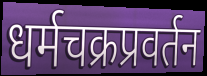
धर्मचक्रप्रवर्तन